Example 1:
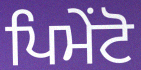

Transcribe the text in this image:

ਪਿਮੇਂਟੋ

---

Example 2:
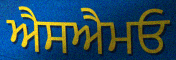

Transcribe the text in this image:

ਐਸਐਮਓ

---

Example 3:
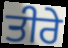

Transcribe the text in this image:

ਤੀਰੇ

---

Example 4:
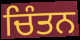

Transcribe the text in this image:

ਚਿੰਤਨ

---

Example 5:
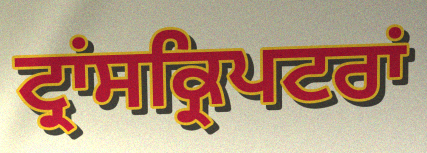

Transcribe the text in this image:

ਟ੍ਰਾਂਸਕ੍ਰਿਪਟਰਾਂ